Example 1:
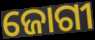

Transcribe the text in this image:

ଜୋଗୀ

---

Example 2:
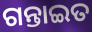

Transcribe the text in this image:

ଗନ୍ତାଇତ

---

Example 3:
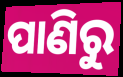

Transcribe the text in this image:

ପାଣିରୁ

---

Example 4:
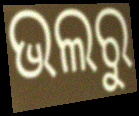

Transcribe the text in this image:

ଭଲରୁ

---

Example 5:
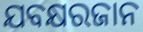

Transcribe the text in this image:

ଯବକ୍ଷରଜାନ